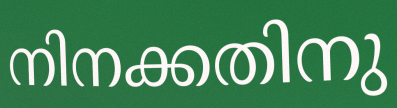
നിനക്കതിനു